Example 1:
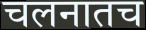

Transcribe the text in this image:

चलनातच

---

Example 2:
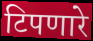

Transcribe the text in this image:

टिपणारे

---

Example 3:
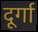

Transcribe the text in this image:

दूर्गा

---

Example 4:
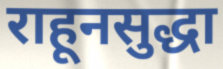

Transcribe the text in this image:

राहूनसुद्धा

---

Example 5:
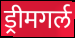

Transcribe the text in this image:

ड्रीमगर्ल